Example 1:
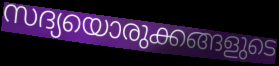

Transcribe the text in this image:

സദ്യയൊരുക്കങ്ങളുടെ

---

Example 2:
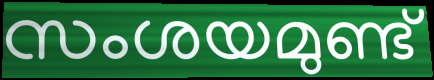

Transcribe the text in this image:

സംശയമുണ്ട്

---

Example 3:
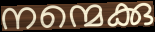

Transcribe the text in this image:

നന്മെക്കു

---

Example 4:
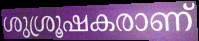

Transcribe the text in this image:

ശുശ്രൂഷകരാണ്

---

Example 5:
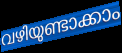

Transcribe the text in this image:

വഴിയുണ്ടാക്കാം